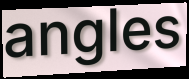
angles